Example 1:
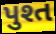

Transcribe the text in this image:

પુશ્ત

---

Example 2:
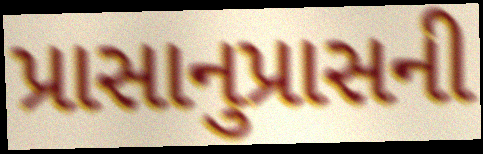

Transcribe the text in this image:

પ્રાસાનુપ્રાસની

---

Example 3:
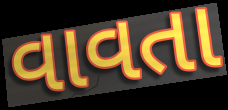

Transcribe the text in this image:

વાવતા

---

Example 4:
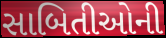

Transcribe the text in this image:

સાબિતીઓની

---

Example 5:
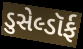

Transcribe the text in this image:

ડુસેલ્ડૉર્ફ